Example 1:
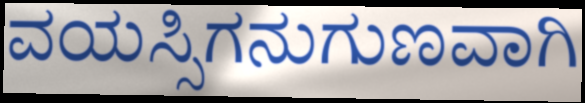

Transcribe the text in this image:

ವಯಸ್ಸಿಗನುಗುಣವಾಗಿ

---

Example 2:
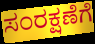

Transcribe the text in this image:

ಸಂರಕ್ಷಣೆಗೆ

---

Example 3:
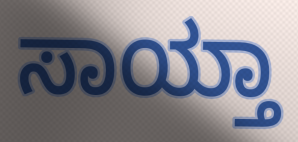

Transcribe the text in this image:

ಸಾಯ್ತಾ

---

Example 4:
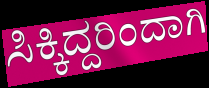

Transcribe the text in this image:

ಸಿಕ್ಕಿದ್ದರಿಂದಾಗಿ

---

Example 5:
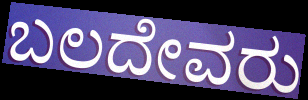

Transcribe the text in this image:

ಬಲದೇವರು